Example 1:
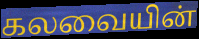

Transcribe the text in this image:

கலவையின்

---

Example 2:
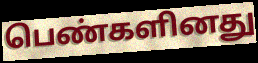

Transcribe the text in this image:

பெண்களினது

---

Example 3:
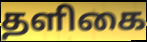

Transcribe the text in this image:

தளிகை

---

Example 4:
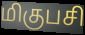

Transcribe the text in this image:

மிகுபசி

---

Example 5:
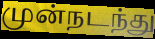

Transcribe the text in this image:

முன்நடந்து